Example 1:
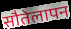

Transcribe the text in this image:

सौतेलापन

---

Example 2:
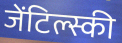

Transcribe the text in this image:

जेंटिल्स्की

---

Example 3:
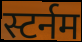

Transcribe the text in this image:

स्टर्नम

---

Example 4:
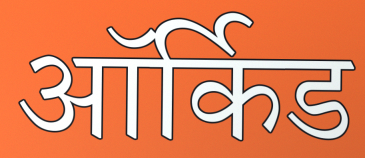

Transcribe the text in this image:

ऑर्किड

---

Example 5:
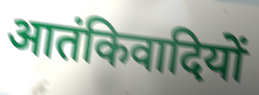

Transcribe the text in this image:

आतंकिवादियों